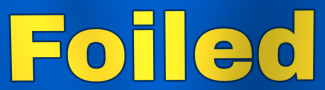
Foiled